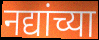
नद्यांच्या